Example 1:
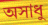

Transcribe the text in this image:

অসাধু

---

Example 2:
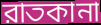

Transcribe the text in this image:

রাতকানা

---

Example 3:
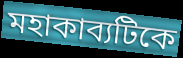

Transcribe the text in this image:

মহাকাব্যটিকে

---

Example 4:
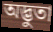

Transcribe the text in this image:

অদ্ভুতা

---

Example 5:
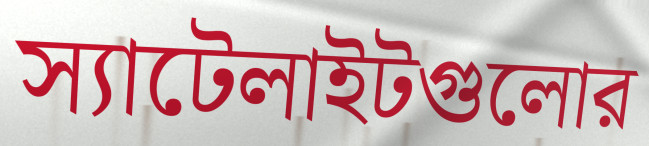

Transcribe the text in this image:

স্যাটেলাইটগুলোর